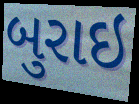
બુરાઇ